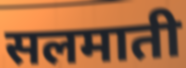
सलमाती